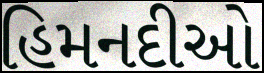
હિમનદીઓ